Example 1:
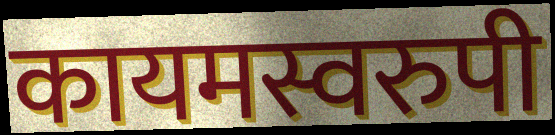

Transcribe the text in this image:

कायमस्वरुपी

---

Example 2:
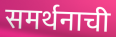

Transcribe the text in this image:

समर्थनाची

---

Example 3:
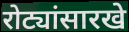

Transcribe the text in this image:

रोट्यांसारखे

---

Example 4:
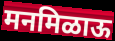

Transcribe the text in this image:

मनमिळाऊ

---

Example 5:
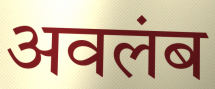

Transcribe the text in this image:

अवलंब